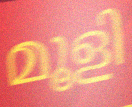
മൂളി